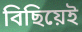
বিছিয়েই